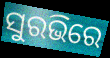
ସୁରଭିରେ